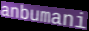
anbumani